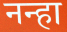
नन्हा